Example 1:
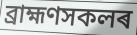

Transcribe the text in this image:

ব্ৰাহ্মণসকলৰ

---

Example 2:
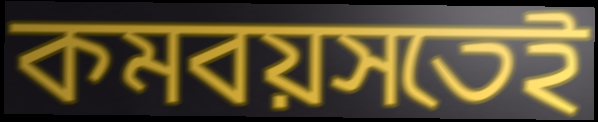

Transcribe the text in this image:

কমবয়সতেই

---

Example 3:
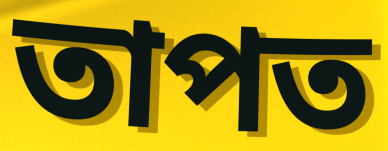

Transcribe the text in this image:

তাপত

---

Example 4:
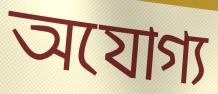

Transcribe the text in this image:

অযোগ্য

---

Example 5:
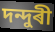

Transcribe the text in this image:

দন্দুৰী